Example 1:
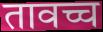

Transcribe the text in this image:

तावच्च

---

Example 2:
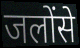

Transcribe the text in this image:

जलोंसे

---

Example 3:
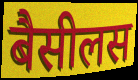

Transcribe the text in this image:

बैसीलस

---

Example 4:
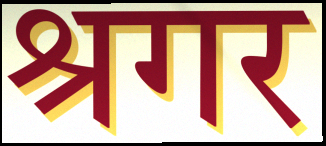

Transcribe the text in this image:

श्रगर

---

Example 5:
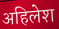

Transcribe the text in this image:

अहिलेश